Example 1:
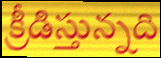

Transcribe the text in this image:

క్రీడిస్తున్నది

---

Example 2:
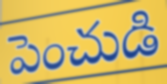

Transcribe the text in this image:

పెంచుడి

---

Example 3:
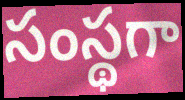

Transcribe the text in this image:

సంస్థగా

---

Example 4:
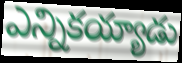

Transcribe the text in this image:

ఎన్నికయ్యాడు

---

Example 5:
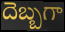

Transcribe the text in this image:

దెబ్బగా